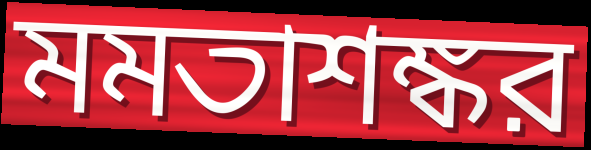
মমতাশঙ্কর